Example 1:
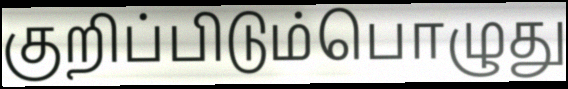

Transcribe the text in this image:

குறிப்பிடும்பொழுது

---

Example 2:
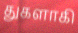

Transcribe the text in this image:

துகளாகி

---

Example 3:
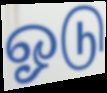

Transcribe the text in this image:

ஓடு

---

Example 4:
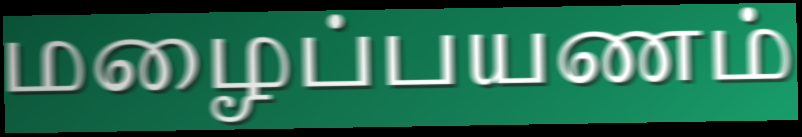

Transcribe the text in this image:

மழைப்பயணம்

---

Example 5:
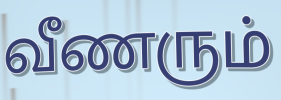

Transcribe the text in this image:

வீணரும்